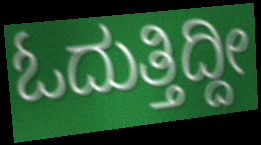
ಓದುತ್ತಿದ್ದೀ